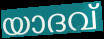
യാദവ്